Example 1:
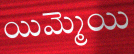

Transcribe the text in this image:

యిమ్మెయి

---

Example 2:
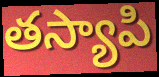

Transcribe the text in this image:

తస్యాపి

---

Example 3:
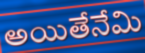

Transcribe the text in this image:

అయితేనేమి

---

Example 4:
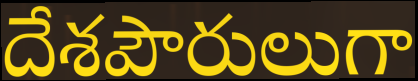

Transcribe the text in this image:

దేశపౌరులుగా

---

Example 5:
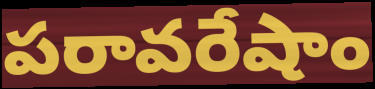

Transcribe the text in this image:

పరావరేషాం